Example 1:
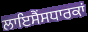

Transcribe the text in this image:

ਲਾਇਸੈਂਸਧਾਰਕਾਂ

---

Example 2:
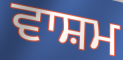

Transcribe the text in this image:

ਵਾਸ਼ਮ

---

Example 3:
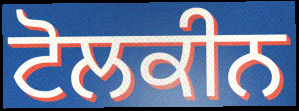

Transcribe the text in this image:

ਟੋਲਕੀਨ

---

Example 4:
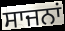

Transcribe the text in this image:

ਸਾਜਨਾਂ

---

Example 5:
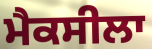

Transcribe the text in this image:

ਮੈਕਸੀਲਾ